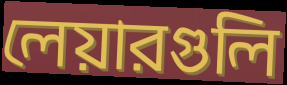
লেয়ারগুলি